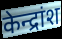
केन्द्रांश